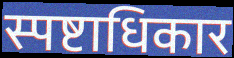
स्पष्टाधिकार